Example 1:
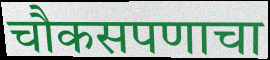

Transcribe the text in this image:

चौकसपणाचा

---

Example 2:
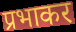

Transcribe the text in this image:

प्रभाकर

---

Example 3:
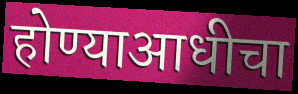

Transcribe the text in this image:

होण्याआधीचा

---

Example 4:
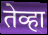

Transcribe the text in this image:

तेव्हा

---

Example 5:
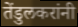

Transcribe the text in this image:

तेंडुलकरांनी